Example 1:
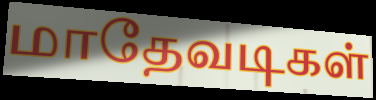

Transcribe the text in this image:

மாதேவடிகள்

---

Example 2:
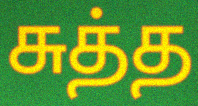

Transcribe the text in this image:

சுத்த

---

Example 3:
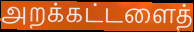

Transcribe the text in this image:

அறக்கட்டளைத்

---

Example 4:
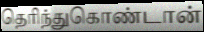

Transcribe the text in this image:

தெரிந்துகொண்டான்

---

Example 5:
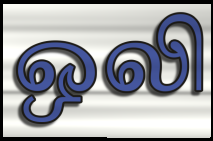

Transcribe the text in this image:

ஒலி